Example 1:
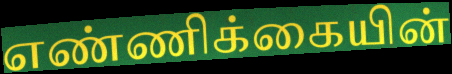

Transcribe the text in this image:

எண்ணிக்கையின்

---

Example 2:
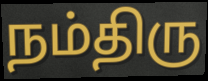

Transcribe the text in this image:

நம்திரு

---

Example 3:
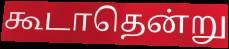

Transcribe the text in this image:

கூடாதென்று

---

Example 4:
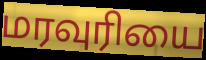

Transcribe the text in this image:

மரவுரியை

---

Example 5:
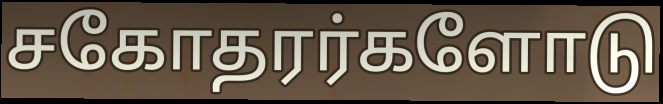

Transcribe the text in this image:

சகோதரர்களோடு